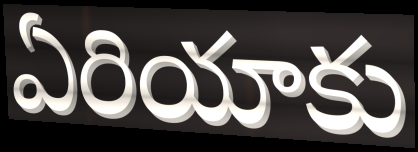
ఏరియాకు